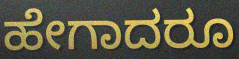
ಹೇಗಾದರೂ